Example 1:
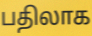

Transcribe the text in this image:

பதிலாக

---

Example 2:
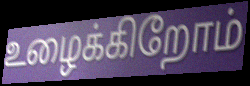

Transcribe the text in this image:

உழைக்கிறோம்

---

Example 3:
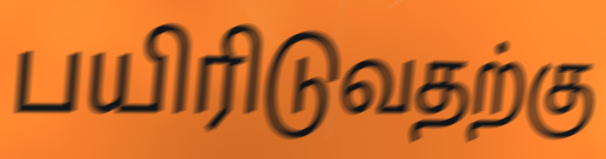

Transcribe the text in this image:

பயிரிடுவதற்கு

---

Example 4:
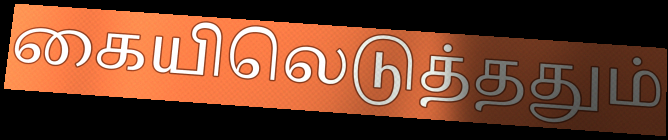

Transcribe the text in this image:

கையிலெடுத்ததும்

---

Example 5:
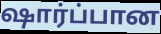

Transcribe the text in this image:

ஷார்ப்பான